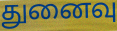
துனைவு